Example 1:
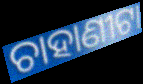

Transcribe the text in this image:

ଚାହାଣୀଟା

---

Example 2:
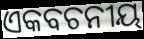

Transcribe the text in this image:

ଏକବଚନୀୟ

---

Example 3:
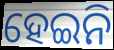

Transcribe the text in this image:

ହେଇନି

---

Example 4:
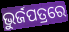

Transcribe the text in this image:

ଭୁର୍ଜପତ୍ରରେ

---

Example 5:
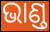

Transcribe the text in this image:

ଭାଣ୍ଡ